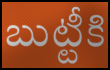
బుట్టీకి